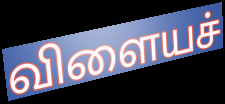
விளையச்